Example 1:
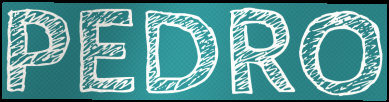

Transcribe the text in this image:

PEDRO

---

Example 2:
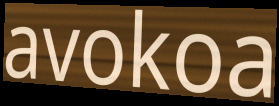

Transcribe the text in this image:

avokoa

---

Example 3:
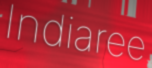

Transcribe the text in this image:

Indiaree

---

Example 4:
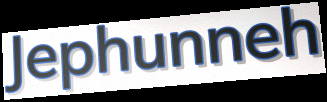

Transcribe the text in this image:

Jephunneh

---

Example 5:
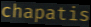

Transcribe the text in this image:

chapatis